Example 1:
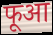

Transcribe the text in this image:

फूआ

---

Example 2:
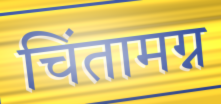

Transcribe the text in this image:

चिंतामग्न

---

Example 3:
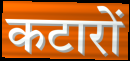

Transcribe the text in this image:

कटारों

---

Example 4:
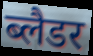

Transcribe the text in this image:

ब्लैडर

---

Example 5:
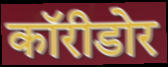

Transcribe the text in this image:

कॉरीडोर